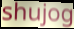
shujog